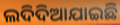
ଲଦିଦିଆଯାଇଛି